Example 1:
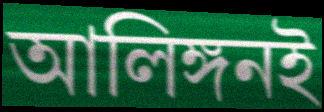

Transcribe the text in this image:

আলিঙ্গনই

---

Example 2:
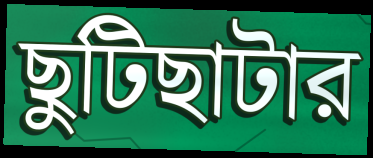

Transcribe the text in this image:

ছুটিছাটার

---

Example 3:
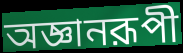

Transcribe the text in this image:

অজ্ঞানরূপী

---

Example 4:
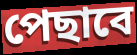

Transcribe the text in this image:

পেছাবে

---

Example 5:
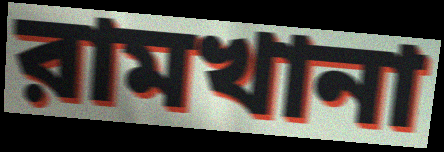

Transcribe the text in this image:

রামখানা